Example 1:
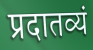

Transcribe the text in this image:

प्रदातव्यं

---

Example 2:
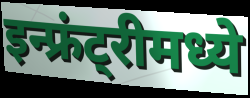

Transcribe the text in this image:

इन्फ्रंट्रीमध्ये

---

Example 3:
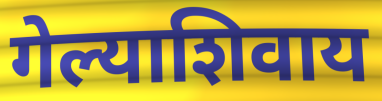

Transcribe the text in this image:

गेल्याशिवाय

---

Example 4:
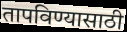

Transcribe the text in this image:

तापविण्यासाठी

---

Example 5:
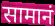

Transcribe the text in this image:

सामानं